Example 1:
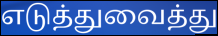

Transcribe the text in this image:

எடுத்துவைத்து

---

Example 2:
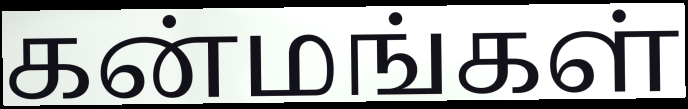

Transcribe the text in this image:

கன்மங்கள்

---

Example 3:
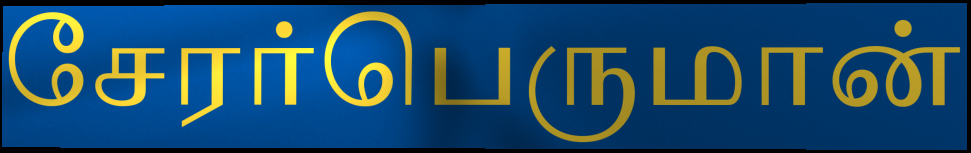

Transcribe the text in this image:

சேரர்பெருமான்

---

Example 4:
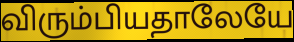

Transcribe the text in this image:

விரும்பியதாலேயே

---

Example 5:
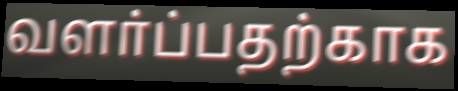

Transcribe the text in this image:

வளர்ப்பதற்காக